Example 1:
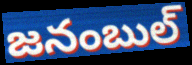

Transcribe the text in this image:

జనంబుల్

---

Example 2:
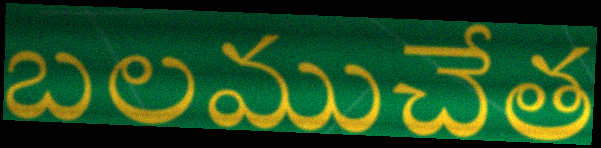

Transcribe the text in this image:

బలముచేత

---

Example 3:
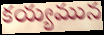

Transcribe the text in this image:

కయ్యమున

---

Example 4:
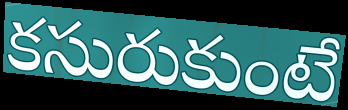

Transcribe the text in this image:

కసురుకుంటే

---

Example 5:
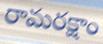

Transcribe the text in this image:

రామరక్షాం